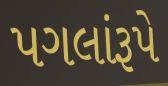
પગલાંરૂપે